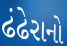
ઢંઢેરાનો